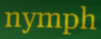
nymph